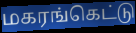
மகரங்கெட்டு